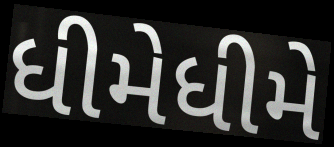
ધીમેધીમે